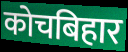
कोचबिहार